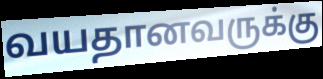
வயதானவருக்கு